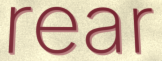
rear